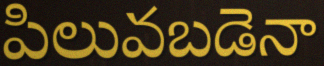
పిలువబడెనా